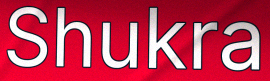
Shukra